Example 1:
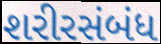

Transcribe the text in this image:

શરીરસંબંધ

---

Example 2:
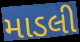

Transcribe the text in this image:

માડલી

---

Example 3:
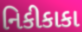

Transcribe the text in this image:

નિકીકાકા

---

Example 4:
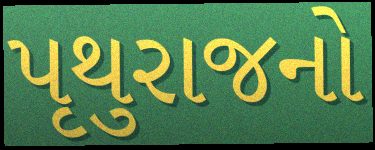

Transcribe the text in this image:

પૃથુરાજનો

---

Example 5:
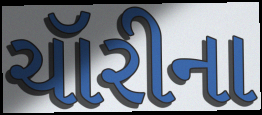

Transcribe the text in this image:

ચૉરીના